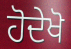
ਹੋਦੇਖੋ